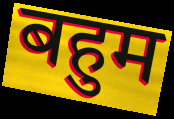
बहुम